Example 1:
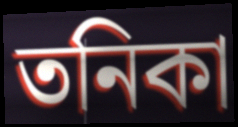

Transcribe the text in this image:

তনিকা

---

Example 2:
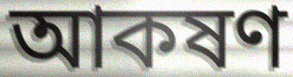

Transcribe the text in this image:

আকষণ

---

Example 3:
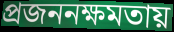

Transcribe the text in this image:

প্রজননক্ষমতায়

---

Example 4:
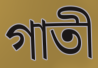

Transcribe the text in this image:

গাতী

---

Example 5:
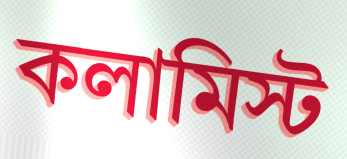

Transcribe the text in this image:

কলামিস্ট